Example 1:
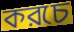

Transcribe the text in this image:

করচে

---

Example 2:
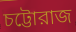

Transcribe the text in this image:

চট্টোরাজ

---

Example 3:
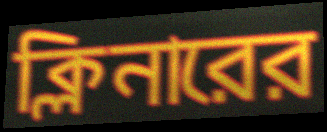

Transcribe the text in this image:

ক্লিনারের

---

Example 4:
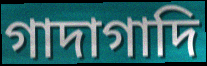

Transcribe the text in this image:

গাদাগাদি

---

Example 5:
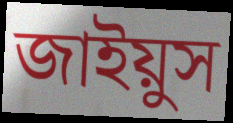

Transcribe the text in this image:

জাইয়ুস